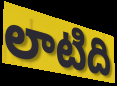
లాటిది